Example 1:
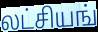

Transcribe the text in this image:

லட்சியங்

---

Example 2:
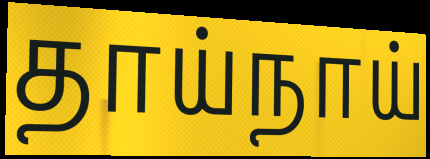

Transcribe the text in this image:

தாய்நாய்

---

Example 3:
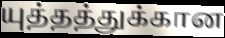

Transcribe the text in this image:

யுத்தத்துக்கான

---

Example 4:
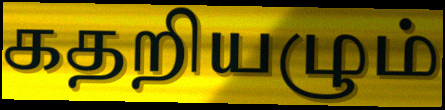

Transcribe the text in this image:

கதறியழும்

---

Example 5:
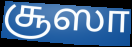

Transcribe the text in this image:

சூஸா